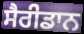
ਸੈਰੀਡਾਨ